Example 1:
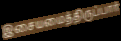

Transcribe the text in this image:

இசையமைத்திருப்பார்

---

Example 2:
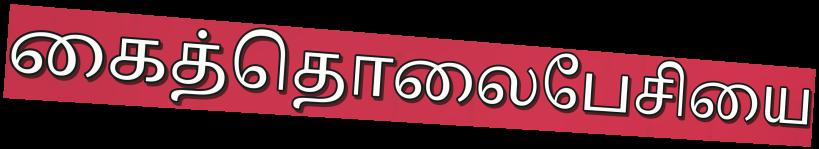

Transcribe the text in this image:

கைத்தொலைபேசியை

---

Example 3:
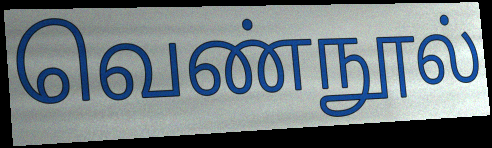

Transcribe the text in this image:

வெண்நூல்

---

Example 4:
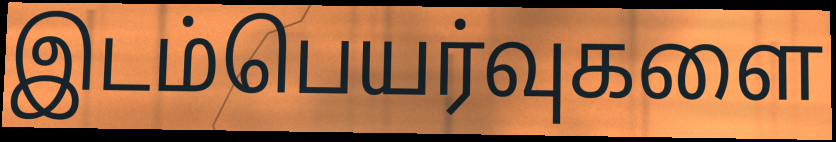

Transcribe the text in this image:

இடம்பெயர்வுகளை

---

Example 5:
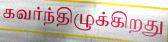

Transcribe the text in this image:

கவர்ந்திழுக்கிறது